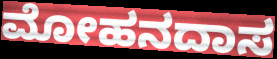
ಮೋಹನದಾಸ